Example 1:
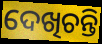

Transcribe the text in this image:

ଦେଖିଚନ୍ତି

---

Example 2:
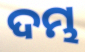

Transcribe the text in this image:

ଦମ୍ଭ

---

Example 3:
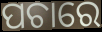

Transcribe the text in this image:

ପଚାରେ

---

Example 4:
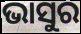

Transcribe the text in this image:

ଭାସୁର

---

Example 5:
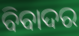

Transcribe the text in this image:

ବିବାଦର